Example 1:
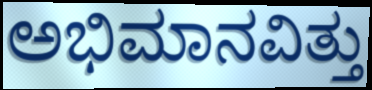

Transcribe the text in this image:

ಅಭಿಮಾನವಿತ್ತು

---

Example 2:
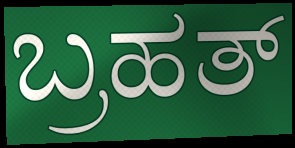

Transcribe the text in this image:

ಬ್ರಹತ್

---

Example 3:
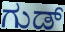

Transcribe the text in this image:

ಗುಡ್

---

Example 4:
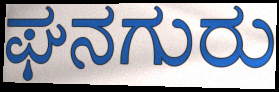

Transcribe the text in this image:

ಘನಗುರು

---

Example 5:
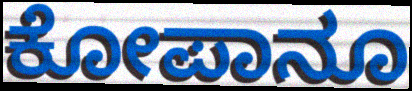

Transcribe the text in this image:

ಕೋಪಾನೂ